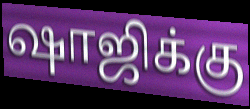
ஷாஜிக்கு